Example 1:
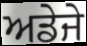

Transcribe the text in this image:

ਅਡੇਜੇ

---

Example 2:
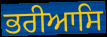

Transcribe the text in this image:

ਭਰੀਆਸਿ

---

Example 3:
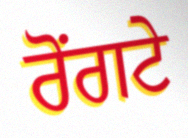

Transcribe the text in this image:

ਰੋੰਗਟੇ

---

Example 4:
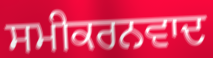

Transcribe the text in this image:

ਸਮੀਕਰਨਵਾਦ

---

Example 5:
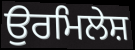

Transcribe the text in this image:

ਉਰਮਿਲੇਸ਼